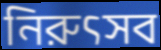
নিরুৎসব